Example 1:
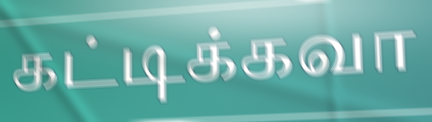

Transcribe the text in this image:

கட்டிக்கவா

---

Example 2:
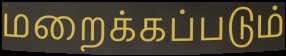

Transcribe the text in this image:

மறைக்கப்படும்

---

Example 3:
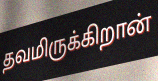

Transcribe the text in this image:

தவமிருக்கிறான்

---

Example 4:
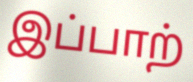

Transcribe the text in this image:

இப்பாற்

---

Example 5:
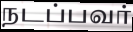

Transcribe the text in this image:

நடப்பவர்